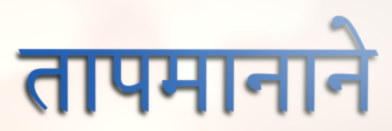
तापमानाने